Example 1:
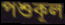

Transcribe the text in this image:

পশুকূল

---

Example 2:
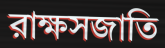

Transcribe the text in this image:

রাক্ষসজাতি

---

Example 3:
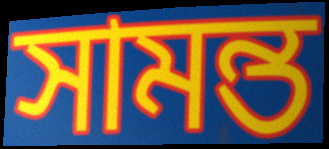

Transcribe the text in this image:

সামন্ত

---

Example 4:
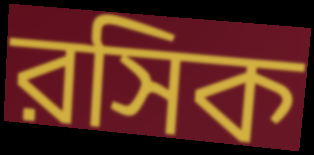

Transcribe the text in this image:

রসিক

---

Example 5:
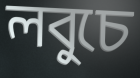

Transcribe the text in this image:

লবুচে